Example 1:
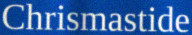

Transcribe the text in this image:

Chrismastide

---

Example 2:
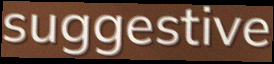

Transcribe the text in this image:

suggestive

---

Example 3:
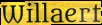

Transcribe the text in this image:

Willaert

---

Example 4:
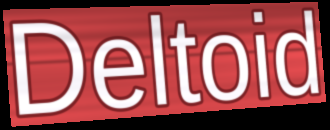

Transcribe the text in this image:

Deltoid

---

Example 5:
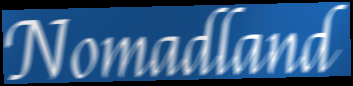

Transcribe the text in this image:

Nomadland